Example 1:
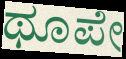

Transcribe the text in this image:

ಥೂಪೇ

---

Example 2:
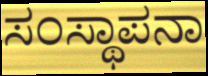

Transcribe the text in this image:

ಸಂಸ್ಥಾಪನಾ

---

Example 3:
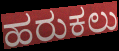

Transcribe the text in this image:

ಹರುಕಲು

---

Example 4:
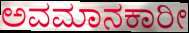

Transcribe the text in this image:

ಅವಮಾನಕಾರೀ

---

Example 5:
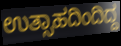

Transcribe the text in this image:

ಉತ್ಸಾಹದಿಂದಿದ್ದ